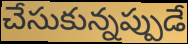
చేసుకున్నప్పుడే